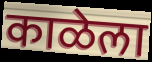
काळेला